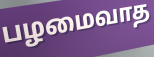
பழமைவாத